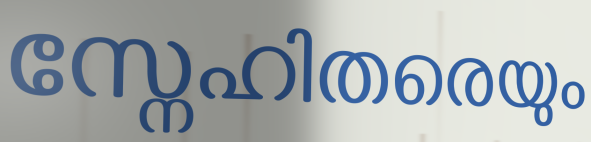
സ്നേഹിതരെയും